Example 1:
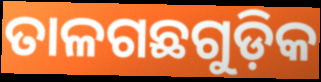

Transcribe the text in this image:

ତାଳଗଛଗୁଡ଼ିକ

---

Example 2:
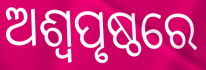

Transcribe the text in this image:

ଅଶ୍ୱପୃଷ୍ଠରେ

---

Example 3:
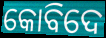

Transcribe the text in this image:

କୋବିଦେ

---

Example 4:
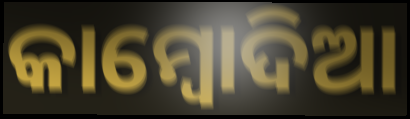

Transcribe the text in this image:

କାମ୍ବୋଦିଆ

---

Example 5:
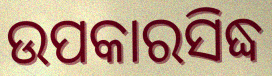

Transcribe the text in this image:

ଉପକାରସିଦ୍ଧ